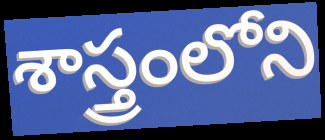
శాస్త్రంలోని